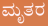
ಮೃತರ